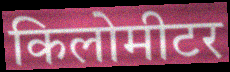
किलोमीटर